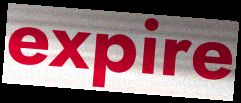
expire